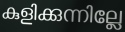
കുളിക്കുന്നില്ലേ